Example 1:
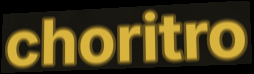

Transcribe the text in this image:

choritro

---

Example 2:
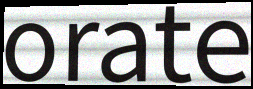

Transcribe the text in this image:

orate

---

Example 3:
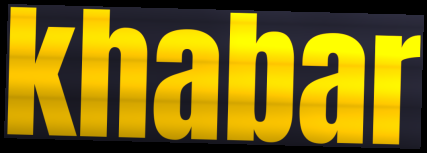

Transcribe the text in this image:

khabar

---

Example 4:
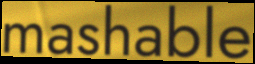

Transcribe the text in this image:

mashable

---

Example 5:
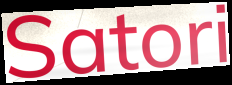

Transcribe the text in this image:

Satori